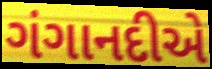
ગંગાનદીએ